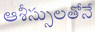
ఆశీస్సులతోనే